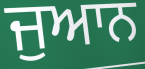
ਜੁਆਨ